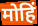
मोहिं